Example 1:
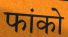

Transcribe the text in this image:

फांको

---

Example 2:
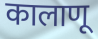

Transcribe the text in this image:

कालाणू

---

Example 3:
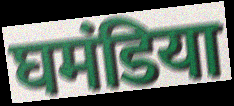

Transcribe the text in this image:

घमंडिया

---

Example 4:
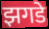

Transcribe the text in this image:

झगडे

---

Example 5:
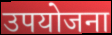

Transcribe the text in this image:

उपयोजना